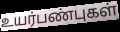
உயர்பண்புகள்